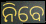
ନିବେ